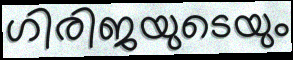
ഗിരിജയുടെയും